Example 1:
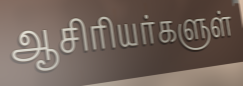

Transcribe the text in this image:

ஆசிரியர்களுள்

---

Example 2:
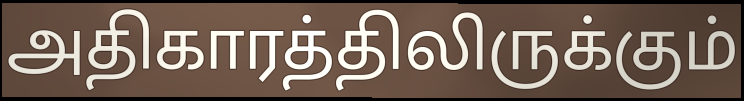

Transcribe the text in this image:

அதிகாரத்திலிருக்கும்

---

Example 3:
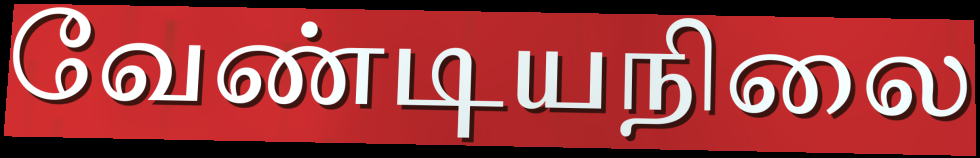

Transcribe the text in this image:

வேண்டியநிலை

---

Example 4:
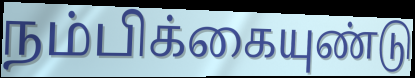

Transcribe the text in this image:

நம்பிக்கையுண்டு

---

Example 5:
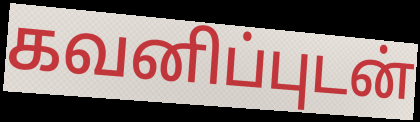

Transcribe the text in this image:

கவனிப்புடன்